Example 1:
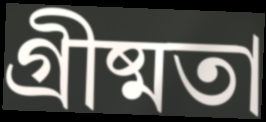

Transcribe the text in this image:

গ্ৰীষ্মতা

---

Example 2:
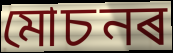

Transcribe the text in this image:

মোচনৰ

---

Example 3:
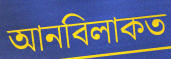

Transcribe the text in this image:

আনবিলাকত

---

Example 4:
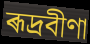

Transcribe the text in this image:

ৰূদ্ৰবীণা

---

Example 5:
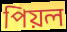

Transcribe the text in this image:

পিয়ল